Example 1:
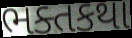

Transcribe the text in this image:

ભક્તકથા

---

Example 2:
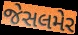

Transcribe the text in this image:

જેસલમેર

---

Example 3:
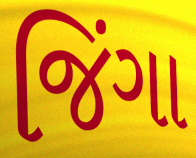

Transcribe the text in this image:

જિંગા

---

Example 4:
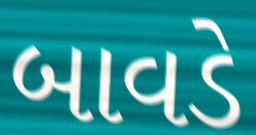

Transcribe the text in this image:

બાવડે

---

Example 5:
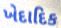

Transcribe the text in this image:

ખેદાદિક